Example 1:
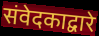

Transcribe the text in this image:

संवेदकाद्वारे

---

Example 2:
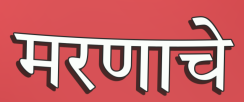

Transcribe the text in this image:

मरणाचे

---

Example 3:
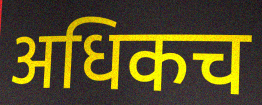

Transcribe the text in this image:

अधिकच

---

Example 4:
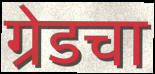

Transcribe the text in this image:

ग्रेडचा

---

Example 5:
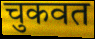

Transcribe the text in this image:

चुकवत